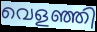
വെളഞ്ഞി